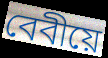
বেবীয়ে